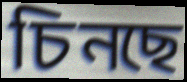
চিনছে